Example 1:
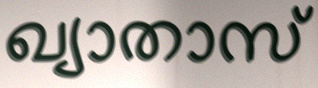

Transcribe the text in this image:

ഖ്യാതാസ്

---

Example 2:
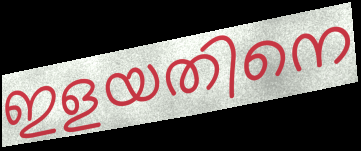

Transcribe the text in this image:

ഇളയതിനെ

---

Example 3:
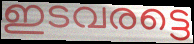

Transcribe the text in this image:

ഇടവരട്ടെ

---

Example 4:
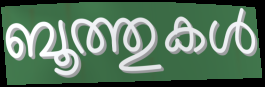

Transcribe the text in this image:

ബൂത്തുകൾ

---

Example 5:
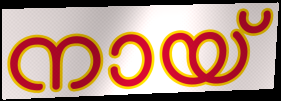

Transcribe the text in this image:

നായ്